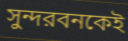
সুন্দরবনকেই